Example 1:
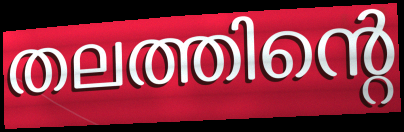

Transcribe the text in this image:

തലത്തിന്റെ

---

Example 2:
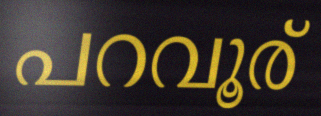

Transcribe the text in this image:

പറവൂര്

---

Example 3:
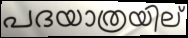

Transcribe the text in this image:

പദയാത്രയില്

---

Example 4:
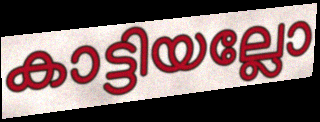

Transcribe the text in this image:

കാട്ടിയല്ലോ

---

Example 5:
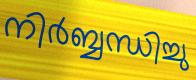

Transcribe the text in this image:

നിർബ്ബന്ധിച്ചു